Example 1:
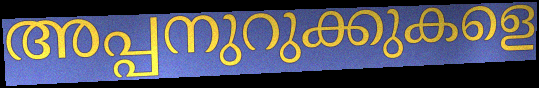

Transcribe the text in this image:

അപ്പനുറുക്കുകളെ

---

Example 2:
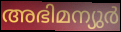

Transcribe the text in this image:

അഭിമന്യുർ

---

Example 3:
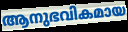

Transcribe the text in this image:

ആനുഭവികമായ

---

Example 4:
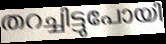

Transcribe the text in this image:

തറച്ചിട്ടുപോയി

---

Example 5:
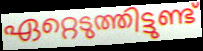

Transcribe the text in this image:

ഏറ്റെടുത്തിട്ടുണ്ട്